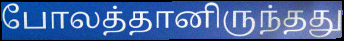
போலத்தானிருந்தது